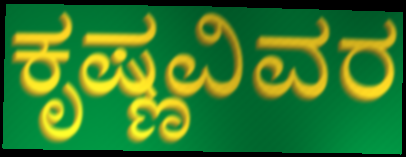
ಕೃಷ್ಣವಿವರ